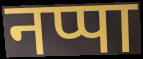
नप्पा